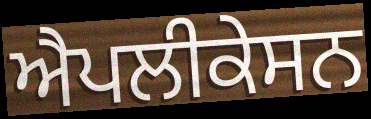
ਐਪਲੀਕੇਸਨ